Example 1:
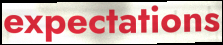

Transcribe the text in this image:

expectations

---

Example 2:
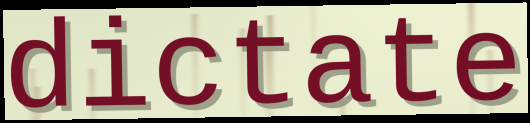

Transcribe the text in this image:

dictate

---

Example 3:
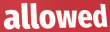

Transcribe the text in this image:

allowed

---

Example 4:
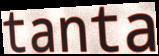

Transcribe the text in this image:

tanta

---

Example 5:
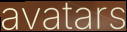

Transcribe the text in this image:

avatars